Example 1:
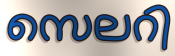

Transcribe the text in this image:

സെലറി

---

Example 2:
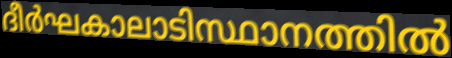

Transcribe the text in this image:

ദീർഘകാലാടിസ്ഥാനത്തിൽ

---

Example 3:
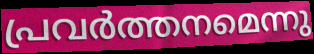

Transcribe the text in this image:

പ്രവർത്തനമെന്നു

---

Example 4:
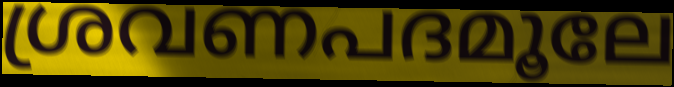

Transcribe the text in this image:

ശ്രവണപദമൂലേ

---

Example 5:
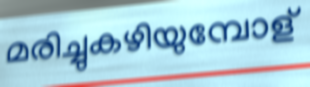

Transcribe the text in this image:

മരിച്ചുകഴിയുമ്പോള്